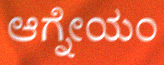
ಆಗ್ನೇಯಂ